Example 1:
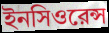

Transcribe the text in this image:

ইনসিওরেন্স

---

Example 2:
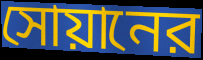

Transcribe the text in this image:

সোয়ানের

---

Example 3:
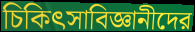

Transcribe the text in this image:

চিকিৎসাবিজ্ঞানীদের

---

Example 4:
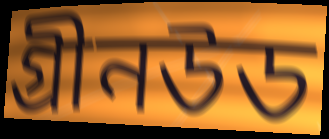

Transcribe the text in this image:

গ্রীনউড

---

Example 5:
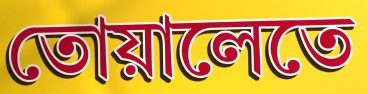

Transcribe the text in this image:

তোয়ালেতে